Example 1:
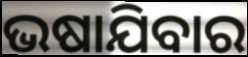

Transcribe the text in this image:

ଭଷାଯିବାର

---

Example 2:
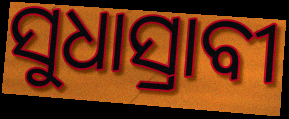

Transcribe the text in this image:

ସୁଧାସ୍ରାବୀ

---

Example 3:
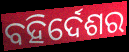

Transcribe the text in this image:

ବହିର୍ଦେଶର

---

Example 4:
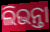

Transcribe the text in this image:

ଲିଭନ୍ତା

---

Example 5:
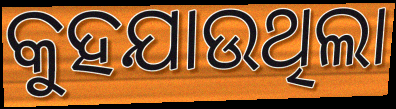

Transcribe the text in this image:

କୁହଯାଉଥିଲା